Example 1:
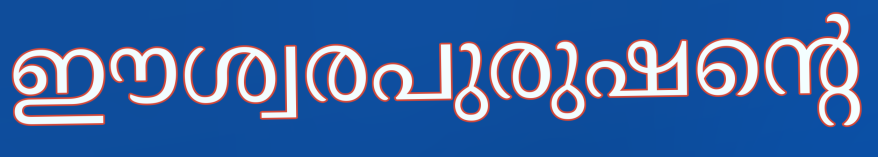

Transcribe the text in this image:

ഈശ്വരപുരുഷന്റെ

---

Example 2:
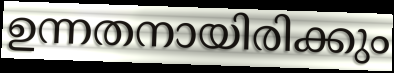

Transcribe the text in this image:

ഉന്നതനായിരിക്കും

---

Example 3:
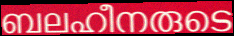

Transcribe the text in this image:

ബലഹീനരുടെ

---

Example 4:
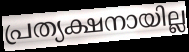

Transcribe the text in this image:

പ്രത്യക്ഷനായില്ല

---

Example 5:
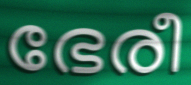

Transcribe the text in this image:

ഭേരീ